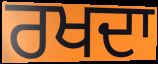
ਰਖਦਾ